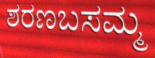
ಶರಣಬಸಮ್ಮ